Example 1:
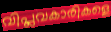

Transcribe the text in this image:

വിപ്ലവകാരികളെ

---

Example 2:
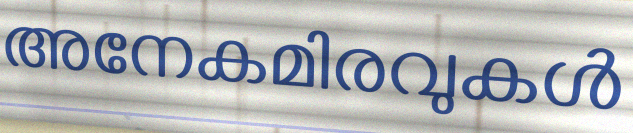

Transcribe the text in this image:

അനേകമിരവുകൾ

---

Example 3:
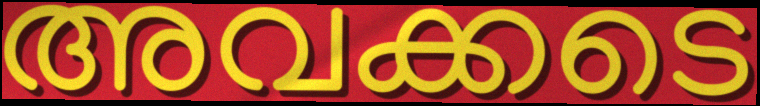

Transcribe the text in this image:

അവക്കടെ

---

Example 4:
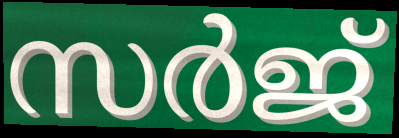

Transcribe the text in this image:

സർജ്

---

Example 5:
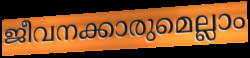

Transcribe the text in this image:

ജീവനക്കാരുമെല്ലാം